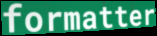
formatter